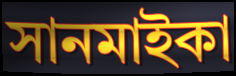
সানমাইকা